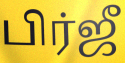
பிர்ஜீ